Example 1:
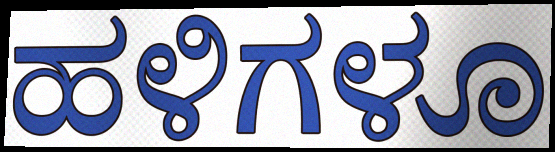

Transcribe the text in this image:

ಹಳಿಗಳೂ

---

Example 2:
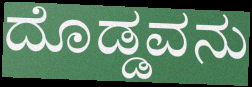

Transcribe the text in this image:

ದೊಡ್ಡವನು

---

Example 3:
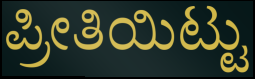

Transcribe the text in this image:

ಪ್ರೀತಿಯಿಟ್ಟು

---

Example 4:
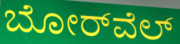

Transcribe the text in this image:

ಬೋರ್‌ವೆಲ್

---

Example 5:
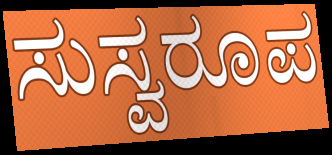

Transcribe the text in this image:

ಸುಸ್ವರೂಪ